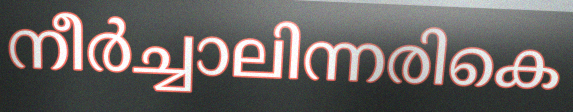
നീർച്ചാലിന്നരികെ